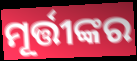
ମୂର୍ତ୍ତୀଙ୍କର